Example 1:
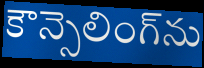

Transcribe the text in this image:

కౌన్సెలింగ్‌ను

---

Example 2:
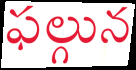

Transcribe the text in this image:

ఫల్గున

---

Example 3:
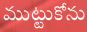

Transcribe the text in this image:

ముట్టుకోను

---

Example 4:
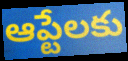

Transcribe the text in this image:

ఆప్టేలకు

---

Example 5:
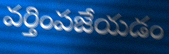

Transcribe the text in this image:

వర్తింపజేయడం